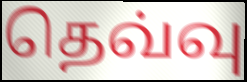
தெவ்வு